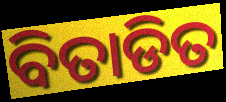
ବିତାଡିତ